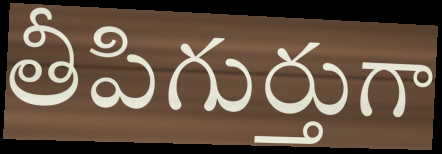
తీపిగుర్తుగా